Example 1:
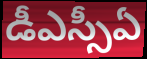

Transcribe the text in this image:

డీఎస్సీఏ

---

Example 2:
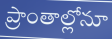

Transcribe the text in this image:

ప్రాంతాల్లోనూ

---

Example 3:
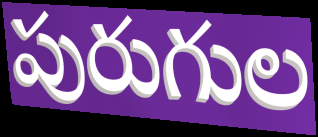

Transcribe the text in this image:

పురుగుల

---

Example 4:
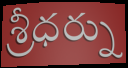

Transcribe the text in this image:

శ్రీధర్ను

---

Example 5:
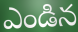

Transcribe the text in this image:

ఎండిన